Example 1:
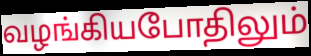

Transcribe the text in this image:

வழங்கியபோதிலும்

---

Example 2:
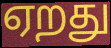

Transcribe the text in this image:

ஏறது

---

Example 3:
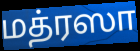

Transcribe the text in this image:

மத்ரஸா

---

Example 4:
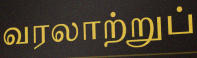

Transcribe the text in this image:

வரலாற்றுப்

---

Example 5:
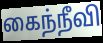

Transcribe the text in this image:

கைந்நீவி